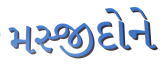
મસ્જીદોને